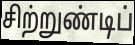
சிற்றுண்டிப்